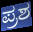
ಪ್ರಶ